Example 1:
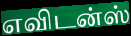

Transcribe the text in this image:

எவிடன்ஸ்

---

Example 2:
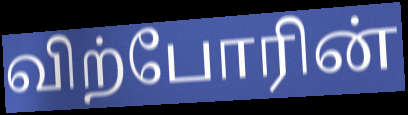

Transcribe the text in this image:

விற்போரின்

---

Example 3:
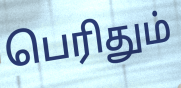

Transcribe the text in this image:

பெரிதும்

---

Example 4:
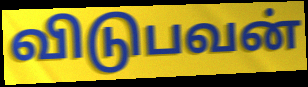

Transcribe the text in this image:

விடுபவன்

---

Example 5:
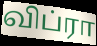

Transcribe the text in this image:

விப்ரா